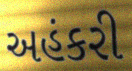
અહંકરી